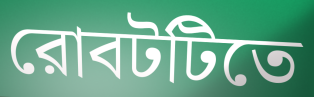
রোবটটিতে